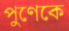
পুণেকে